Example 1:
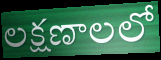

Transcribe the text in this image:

లక్షణాలలో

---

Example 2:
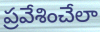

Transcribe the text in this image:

ప్రవేశించేలా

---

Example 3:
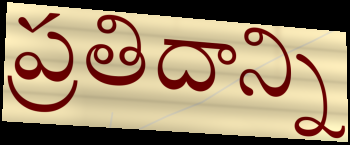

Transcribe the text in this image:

ప్రతిదాన్ని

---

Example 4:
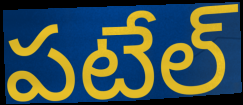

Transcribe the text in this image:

పటేల్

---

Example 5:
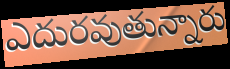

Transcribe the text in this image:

ఎదురవుతున్నారు